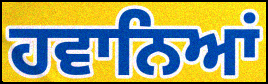
ਹਵਾਨਿਆਂ